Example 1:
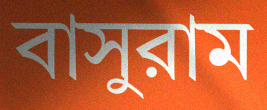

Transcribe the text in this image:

বাসুরাম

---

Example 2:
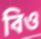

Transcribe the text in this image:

বিও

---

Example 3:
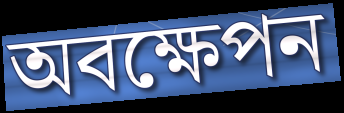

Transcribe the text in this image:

অবক্ষেপন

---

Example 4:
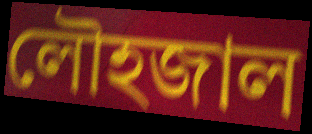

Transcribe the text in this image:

লৌহজাল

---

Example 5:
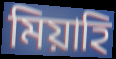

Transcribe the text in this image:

মিয়াহি